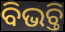
ବିଭଚ୍ତି